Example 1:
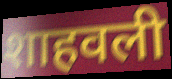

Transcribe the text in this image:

शाहवली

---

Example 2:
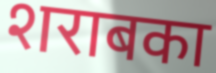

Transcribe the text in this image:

शराबका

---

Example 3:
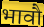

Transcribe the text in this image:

भावौ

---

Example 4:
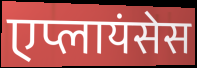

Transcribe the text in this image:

एप्लायंसेस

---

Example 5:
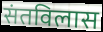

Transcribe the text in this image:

संतविलास